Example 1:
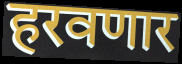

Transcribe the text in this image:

हरवणार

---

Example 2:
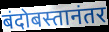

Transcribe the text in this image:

बंदोबस्तानंतर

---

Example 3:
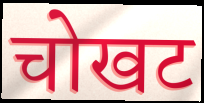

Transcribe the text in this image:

चोखट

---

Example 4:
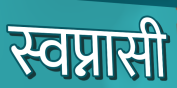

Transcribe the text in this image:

स्वप्नासी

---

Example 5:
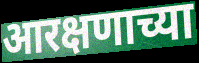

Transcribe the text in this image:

आरक्षणाच्या